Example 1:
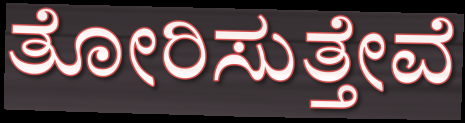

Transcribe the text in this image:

ತೋರಿಸುತ್ತೇವೆ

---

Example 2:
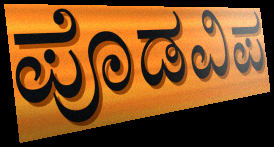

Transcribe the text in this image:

ಪೊಡವಿಪ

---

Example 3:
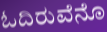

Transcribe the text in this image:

ಓದಿರುವೆನೊ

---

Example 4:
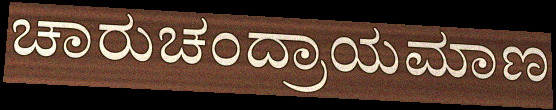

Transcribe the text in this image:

ಚಾರುಚಂದ್ರಾಯಮಾಣ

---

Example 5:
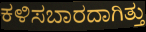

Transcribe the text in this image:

ಕಳಿಸಬಾರದಾಗಿತ್ತು